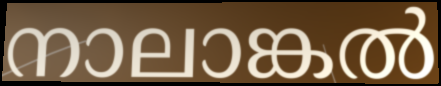
നാലാങ്കൽ